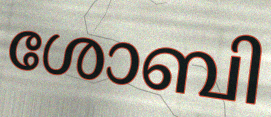
ശോബി